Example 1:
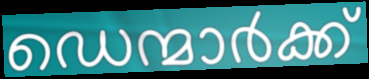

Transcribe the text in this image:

ഡെന്മാർക്ക്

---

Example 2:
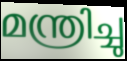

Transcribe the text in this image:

മന്ത്രിച്ചു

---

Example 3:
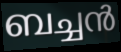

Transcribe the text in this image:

ബച്ചൻ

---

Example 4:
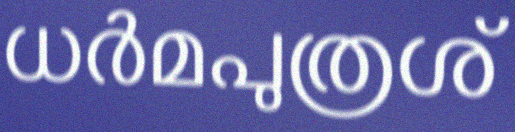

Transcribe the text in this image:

ധർമപുത്രശ്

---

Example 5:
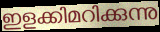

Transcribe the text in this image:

ഇളക്കിമറിക്കുന്നു